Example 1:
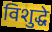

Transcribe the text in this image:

विशुद्धे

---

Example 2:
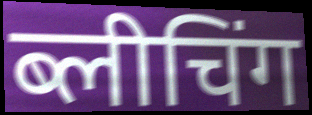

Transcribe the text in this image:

ब्लीचिंग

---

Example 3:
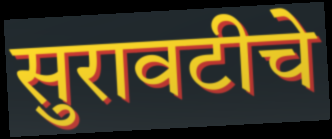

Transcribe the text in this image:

सुरावटीचे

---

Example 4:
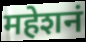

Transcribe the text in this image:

महेशनं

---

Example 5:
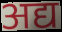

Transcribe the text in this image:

अद्य